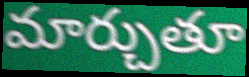
మార్చుతూ